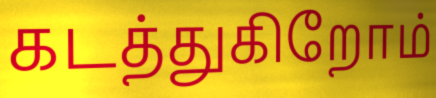
கடத்துகிறோம்